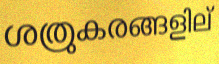
ശത്രുകരങ്ങളില്